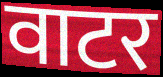
वाटर